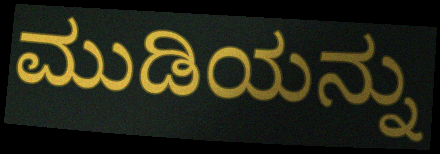
ಮುಡಿಯನ್ನು